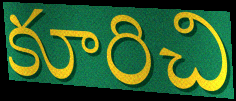
కూరిచి